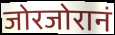
जोरजोरानं